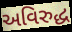
અવિરુદ્ધ